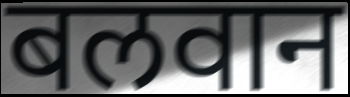
बलवान